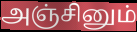
அஞ்சினும்